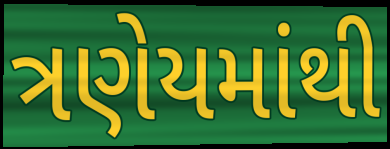
ત્રણેયમાંથી